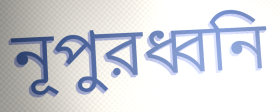
নূপুরধ্বনি